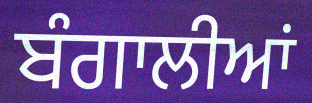
ਬੰਗਾਲੀਆਂ